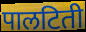
पालटिती